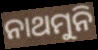
ନାଥମୁନି